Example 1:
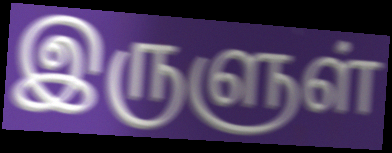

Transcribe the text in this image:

இருளுள்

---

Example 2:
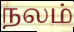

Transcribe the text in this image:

நலம்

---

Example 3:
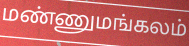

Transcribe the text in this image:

மண்ணுமங்கலம்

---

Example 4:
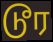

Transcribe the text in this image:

டூர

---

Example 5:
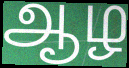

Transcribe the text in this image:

ஆழ